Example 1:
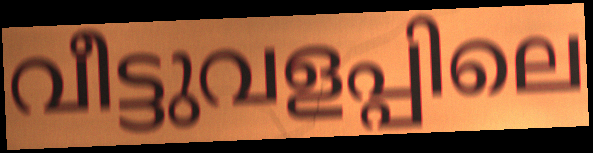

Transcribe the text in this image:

വീട്ടുവളപ്പിലെ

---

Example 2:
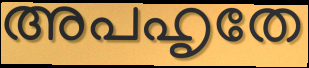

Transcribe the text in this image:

അപഹൃതേ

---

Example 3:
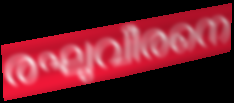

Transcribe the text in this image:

രഘുവീരനെ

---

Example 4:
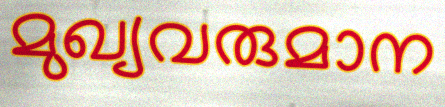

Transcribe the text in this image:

മുഖ്യവരുമാന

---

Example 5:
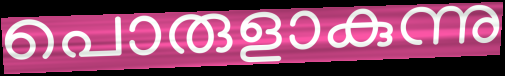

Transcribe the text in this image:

പൊരുളാകുന്നു